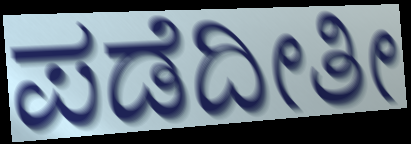
ಪಡೆದೀತೀ